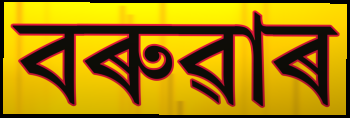
বৰুৱাৰ